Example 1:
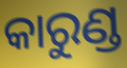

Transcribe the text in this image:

କାରୁଣ୍ଡ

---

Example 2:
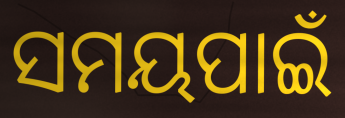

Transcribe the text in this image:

ସମୟପାଇଁ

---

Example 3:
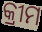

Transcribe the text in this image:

କ୍ରୀମ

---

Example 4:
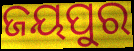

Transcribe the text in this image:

ଜୟପୁର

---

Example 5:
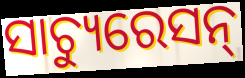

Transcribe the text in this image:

ସାଚ୍ୟୁରେସନ୍